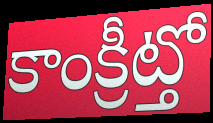
కాంక్రీట్తో